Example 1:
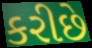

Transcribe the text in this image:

કરીછે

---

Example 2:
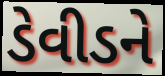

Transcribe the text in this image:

ડેવીડને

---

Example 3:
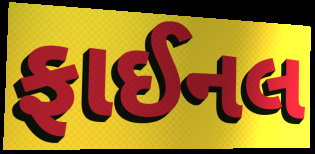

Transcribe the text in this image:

ફાઈનલ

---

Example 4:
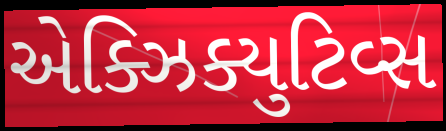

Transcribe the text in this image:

એક્ઝિક્યુટિવ્સ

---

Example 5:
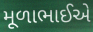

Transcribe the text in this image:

મૂળાભાઈએ